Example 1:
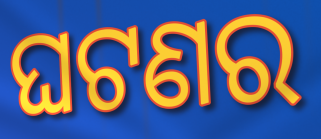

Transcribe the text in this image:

ଘଟଣର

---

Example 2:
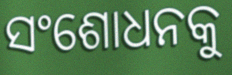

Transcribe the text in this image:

ସଂଶୋଧନକୁ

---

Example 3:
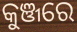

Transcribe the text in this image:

କୁଞ୍ଜରେ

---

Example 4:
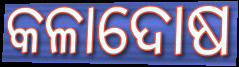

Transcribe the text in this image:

କଳାଦୋଷ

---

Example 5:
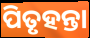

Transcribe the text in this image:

ପିତୃହନ୍ତା